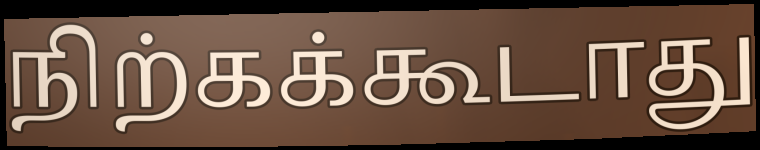
நிற்கக்கூடாது